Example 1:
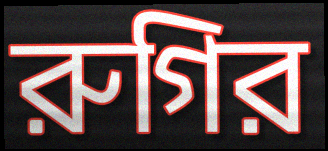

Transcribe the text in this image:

রুগির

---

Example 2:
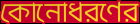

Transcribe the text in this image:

কোনোধরণের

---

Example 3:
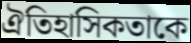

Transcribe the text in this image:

ঐতিহাসিকতাকে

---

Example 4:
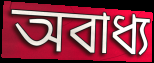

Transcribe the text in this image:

অবাধ্য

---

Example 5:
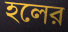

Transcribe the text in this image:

হলের